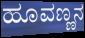
ಹೂವಣ್ಣನ